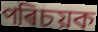
পৰিচয়ক